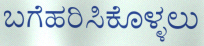
ಬಗೆಹರಿಸಿಕೊಳ್ಳಲು